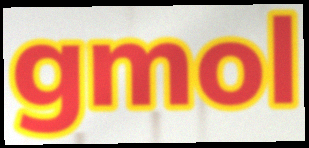
gmol